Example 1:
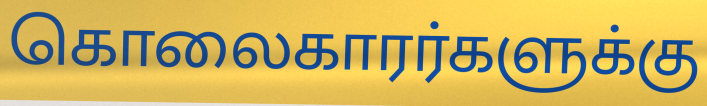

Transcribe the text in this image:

கொலைகாரர்களுக்கு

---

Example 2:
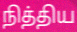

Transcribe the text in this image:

நித்திய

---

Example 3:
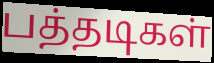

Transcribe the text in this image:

பத்தடிகள்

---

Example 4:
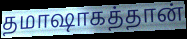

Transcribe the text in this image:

தமாஷாகத்தான்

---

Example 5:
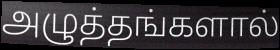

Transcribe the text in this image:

அழுத்தங்களால்